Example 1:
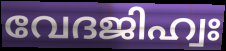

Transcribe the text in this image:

വേദജിഹ്വഃ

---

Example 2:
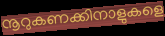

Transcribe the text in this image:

നൂറുകണക്കിനാളുകളെ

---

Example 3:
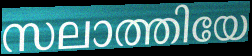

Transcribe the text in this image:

സലാത്തിയേ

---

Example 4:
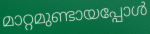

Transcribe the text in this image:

മാറ്റമുണ്ടായപ്പോൾ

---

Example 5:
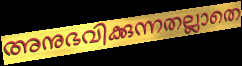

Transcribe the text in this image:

അനുഭവിക്കുന്നതല്ലാതെ